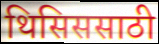
थिसिससाठी